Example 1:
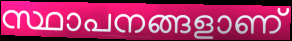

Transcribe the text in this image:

സ്ഥാപനങ്ങളാണ്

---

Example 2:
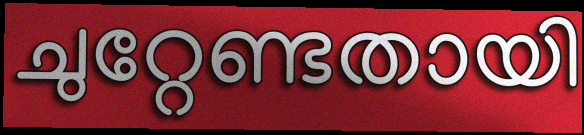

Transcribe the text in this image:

ചുറ്റേണ്ടതായി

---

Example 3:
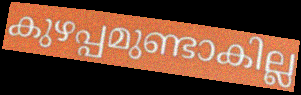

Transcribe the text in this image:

കുഴപ്പമുണ്ടാകില്ല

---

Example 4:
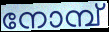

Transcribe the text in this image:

നോമ്പ്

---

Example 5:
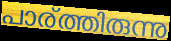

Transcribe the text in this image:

പാര്ത്തിരുന്നു